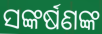
ସଙ୍କର୍ଷଣଙ୍କ